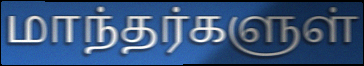
மாந்தர்களுள்